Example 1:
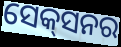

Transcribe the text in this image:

ସେକ୍‌ସନର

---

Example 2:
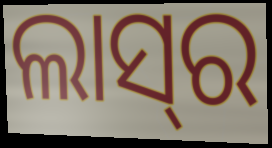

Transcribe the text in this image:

ଲାସ୍‌ର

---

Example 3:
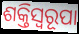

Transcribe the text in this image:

ଶକ୍ତିସ୍ବରୂପା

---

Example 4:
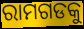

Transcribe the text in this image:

ରାମଗଡକୁ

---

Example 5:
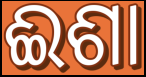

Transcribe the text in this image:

ଈଶା